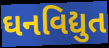
ઘનવિદ્યુત